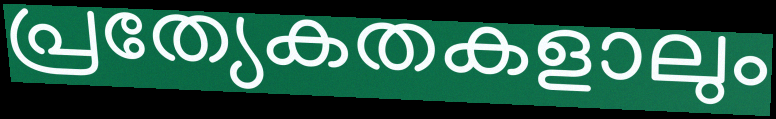
പ്രത്യേകതകളാലും